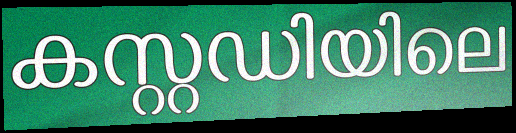
കസ്റ്റഡിയിലെ